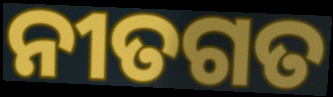
ନୀତଗତ